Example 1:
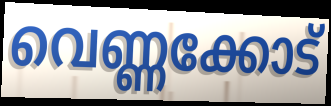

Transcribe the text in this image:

വെണ്ണക്കോട്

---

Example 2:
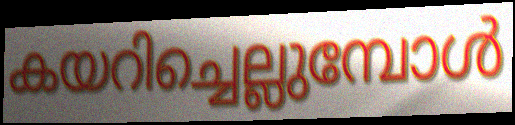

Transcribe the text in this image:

കയറിച്ചെല്ലുമ്പോൾ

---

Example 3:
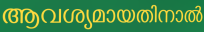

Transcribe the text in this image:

ആവശ്യമായതിനാൽ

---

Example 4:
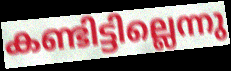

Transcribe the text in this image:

കണ്ടിട്ടില്ലെന്നു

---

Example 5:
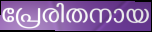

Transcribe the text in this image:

പ്രേരിതനായ